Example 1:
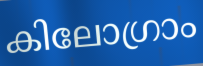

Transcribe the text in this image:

കിലോഗ്രാം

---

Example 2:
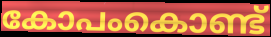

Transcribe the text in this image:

കോപംകൊണ്ട്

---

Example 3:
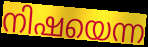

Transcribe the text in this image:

നിഷയെന്ന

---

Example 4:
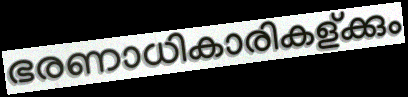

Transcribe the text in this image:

ഭരണാധികാരികള്ക്കും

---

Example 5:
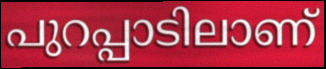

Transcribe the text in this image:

പുറപ്പാടിലാണ്